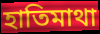
হাতিমাথা